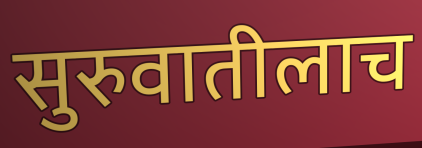
सुरुवातीलाच